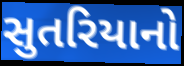
સુતરિયાનો